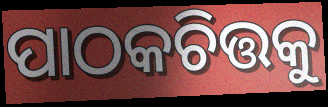
ପାଠକଚିତ୍ତକୁ